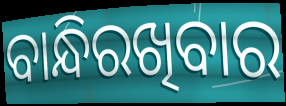
ବାନ୍ଧିରଖିବାର